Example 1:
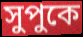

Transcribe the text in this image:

সুপুকে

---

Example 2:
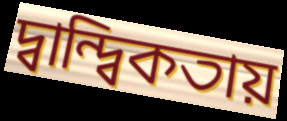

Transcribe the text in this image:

দ্বান্দ্বিকতায়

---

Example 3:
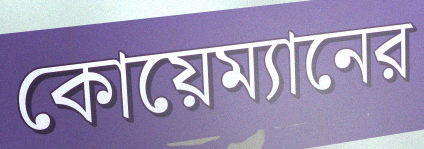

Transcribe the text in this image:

কোয়েম্যানের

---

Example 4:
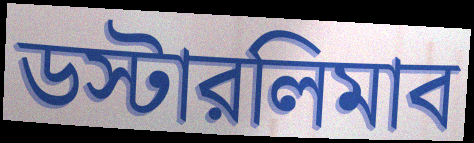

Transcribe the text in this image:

ডস্টারলিমাব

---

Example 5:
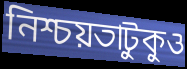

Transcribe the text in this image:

নিশ্চয়তাটুকুও